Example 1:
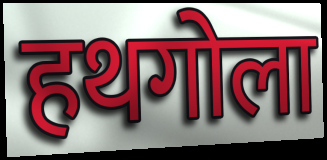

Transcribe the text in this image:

हथगोला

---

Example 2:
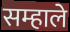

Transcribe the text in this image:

सम्हाले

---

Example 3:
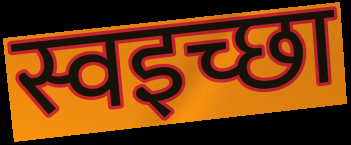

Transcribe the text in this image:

स्वइच्छा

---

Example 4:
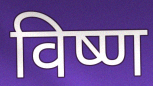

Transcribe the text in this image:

विष्ण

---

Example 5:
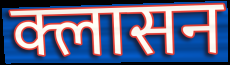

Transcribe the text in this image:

क्लासन